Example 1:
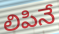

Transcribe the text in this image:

లిపినే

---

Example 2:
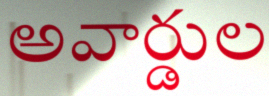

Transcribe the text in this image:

అవార్డుల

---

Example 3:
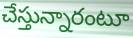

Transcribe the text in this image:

చేస్తున్నారంటూ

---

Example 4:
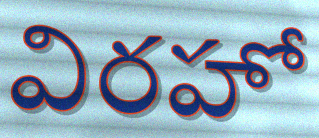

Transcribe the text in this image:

విరహో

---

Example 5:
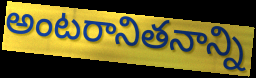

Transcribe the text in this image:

అంటరానితనాన్ని